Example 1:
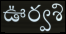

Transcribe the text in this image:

ఊర్వశి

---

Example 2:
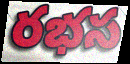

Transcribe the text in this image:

రభస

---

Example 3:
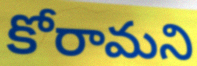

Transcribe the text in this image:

కోరామని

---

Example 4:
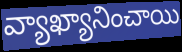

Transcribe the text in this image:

వ్యాఖ్యానించాయి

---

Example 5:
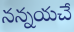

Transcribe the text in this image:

నన్నయచే